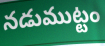
నడుముట్టం